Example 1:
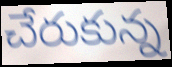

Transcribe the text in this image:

చేరుకున్న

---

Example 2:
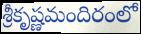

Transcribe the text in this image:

శ్రీకృష్ణమందిరంలో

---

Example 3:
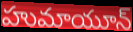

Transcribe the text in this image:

హుమాయూన్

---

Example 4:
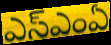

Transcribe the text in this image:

ఎస్ఎంఏ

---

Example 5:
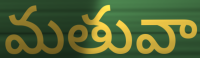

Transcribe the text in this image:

మతువా